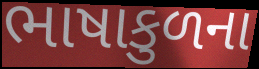
ભાષાકુળના